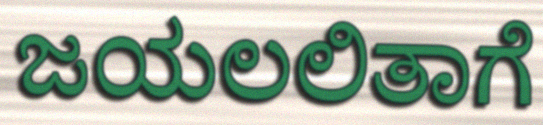
ಜಯಲಲಿತಾಗೆ